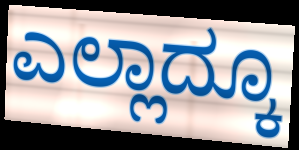
ಎಲ್ಲಾದ್ಕೂ